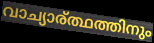
വാച്യാര്ത്ഥത്തിനും